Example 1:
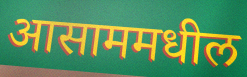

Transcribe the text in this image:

आसाममधील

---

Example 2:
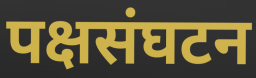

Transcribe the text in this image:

पक्षसंघटन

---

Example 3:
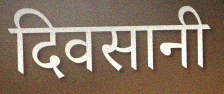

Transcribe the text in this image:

दिवसानी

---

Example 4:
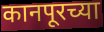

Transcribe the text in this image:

कानपूरच्या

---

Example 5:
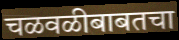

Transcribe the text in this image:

चळवळीबाबतचा